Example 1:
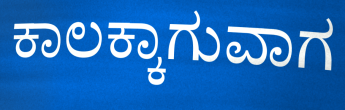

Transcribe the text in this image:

ಕಾಲಕ್ಕಾಗುವಾಗ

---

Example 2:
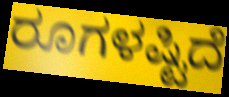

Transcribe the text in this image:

ರೂಗಳಷ್ಟಿದೆ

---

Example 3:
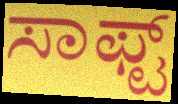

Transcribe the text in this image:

ಸಾಫ್ಟ್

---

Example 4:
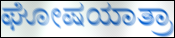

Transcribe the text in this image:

ಘೋಷಯಾತ್ರಾ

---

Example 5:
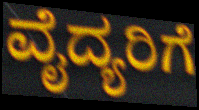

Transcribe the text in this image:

ವೈದ್ಯರಿಗೆ